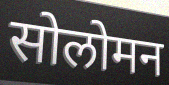
सोलोमन